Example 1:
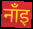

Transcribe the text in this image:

नाँइ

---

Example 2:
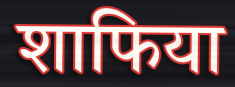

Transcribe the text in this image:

शाफिया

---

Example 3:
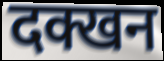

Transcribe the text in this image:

दक्खन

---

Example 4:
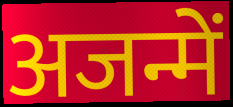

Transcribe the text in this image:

अजन्में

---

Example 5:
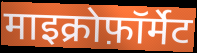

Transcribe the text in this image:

माइक्रोफ़ॉर्मेट